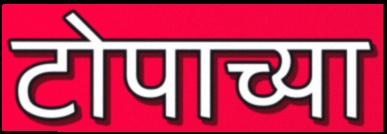
टोपाच्या